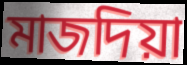
মাজদিয়া